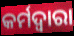
କର୍ମଦ୍ୱାରା